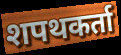
शपथकर्ता